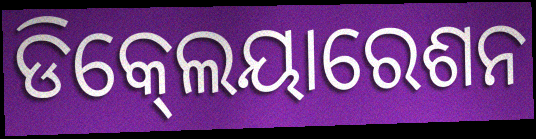
ଡିକ୍‍ଲେୟାରେଶନ